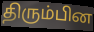
திரும்பின